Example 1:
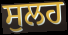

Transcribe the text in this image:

ਸੁਲਹ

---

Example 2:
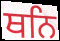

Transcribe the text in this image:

ਥਨਿ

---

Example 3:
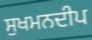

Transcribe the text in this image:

ਸੁਖਮਨਦੀਪ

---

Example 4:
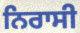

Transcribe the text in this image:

ਨਿਰਾਸੀ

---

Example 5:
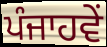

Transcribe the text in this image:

ਪੰਜਾਹਵੇਂ